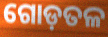
ଗୋଡ଼ତଳ